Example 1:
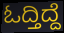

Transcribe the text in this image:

ಓದ್ತಿದ್ದೆ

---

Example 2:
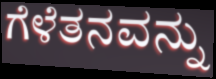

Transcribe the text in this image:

ಗೆಳೆತನವನ್ನು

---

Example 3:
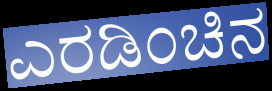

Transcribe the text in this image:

ಎರಡಿಂಚಿನ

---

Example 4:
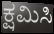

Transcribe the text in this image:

ಕ್ಷಮಿಸಿ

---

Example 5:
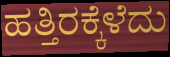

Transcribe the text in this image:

ಹತ್ತಿರಕ್ಕೆಳೆದು